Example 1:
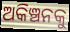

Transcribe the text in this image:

ଅକିଞ୍ଚନକୁ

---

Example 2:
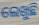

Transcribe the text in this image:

ଲେଖୁଛି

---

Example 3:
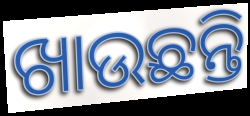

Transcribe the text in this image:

ଖାଉଛନ୍ତି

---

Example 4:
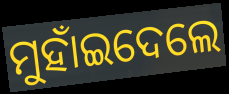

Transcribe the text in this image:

ମୁହାଁଇଦେଲେ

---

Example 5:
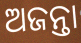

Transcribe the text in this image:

ଅଜନ୍ତା